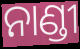
ନାଣ୍ଡୀ